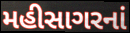
મહીસાગરનાં